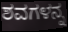
ಶವಗಳನ್ನ